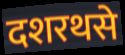
दशरथसे